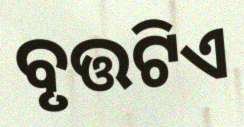
ବୃତ୍ତଟିଏ